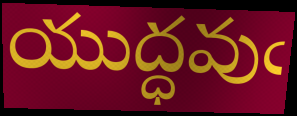
యుద్ధవుఁ